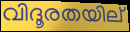
വിദൂരതയില്